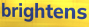
brightens